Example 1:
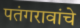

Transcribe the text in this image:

पतंगरावांचे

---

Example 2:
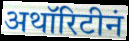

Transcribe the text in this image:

अथॉरिटीनं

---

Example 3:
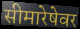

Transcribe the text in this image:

सीमारेषेवर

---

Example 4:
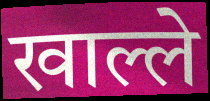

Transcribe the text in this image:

खाल्ले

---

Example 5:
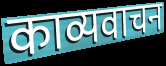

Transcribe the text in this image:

काव्यवाचन